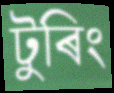
টুৰিং